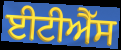
ਈਟੀਐੱਸ